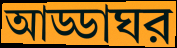
আড্ডাঘর